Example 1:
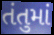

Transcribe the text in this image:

તંતુમાં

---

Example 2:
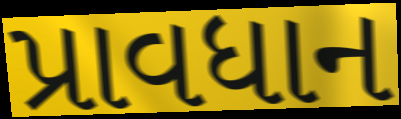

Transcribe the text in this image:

પ્રાવધાન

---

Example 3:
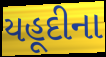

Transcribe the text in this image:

યહૂદીના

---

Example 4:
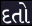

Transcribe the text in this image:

દતો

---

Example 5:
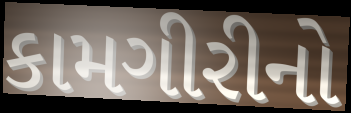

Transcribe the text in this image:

કામગીરીનો